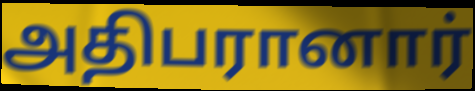
அதிபரானார்